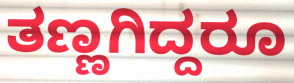
ತಣ್ಣಗಿದ್ದರೂ